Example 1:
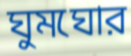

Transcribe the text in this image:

ঘুমঘোর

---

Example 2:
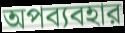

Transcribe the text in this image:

অপব্যবহার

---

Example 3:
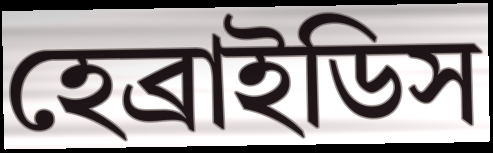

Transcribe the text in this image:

হেব্রাইডিস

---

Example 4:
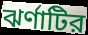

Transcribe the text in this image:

ঝর্ণাটির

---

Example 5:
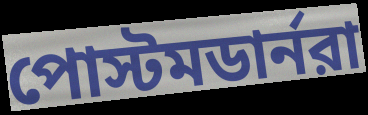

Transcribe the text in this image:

পোস্টমডার্নরা